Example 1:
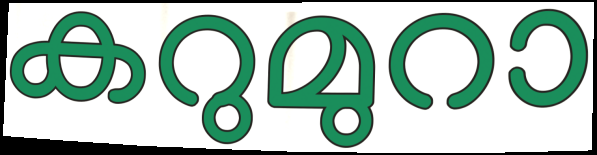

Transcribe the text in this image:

കറുമുറാ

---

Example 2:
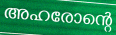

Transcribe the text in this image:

അഹരോന്റെ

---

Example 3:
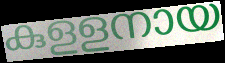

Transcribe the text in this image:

കുളളനായ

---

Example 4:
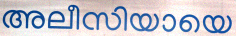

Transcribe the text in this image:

അലീസിയായെ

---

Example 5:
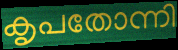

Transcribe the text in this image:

കൃപതോന്നി